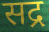
सद्र